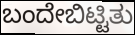
ಬಂದೇಬಿಟ್ಟಿತು